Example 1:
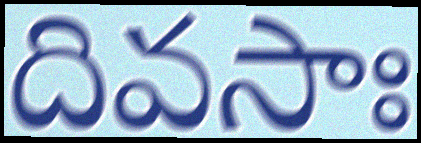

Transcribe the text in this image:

దివసాః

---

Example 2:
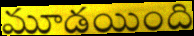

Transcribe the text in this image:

మూడయింది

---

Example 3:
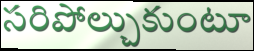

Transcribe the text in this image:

సరిపోల్చుకుంటూ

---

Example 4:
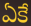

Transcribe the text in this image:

ఏకే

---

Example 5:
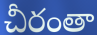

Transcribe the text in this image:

చీరంతా